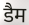
डैम